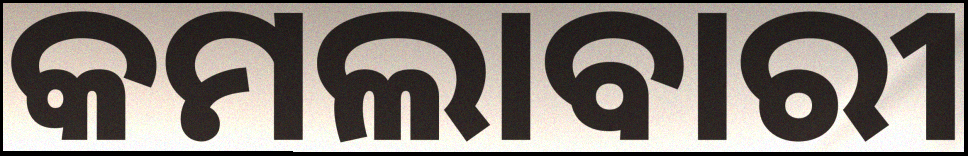
କମଲାବାରୀ